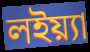
লইয়্যা